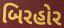
બિરહોર